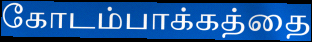
கோடம்பாக்கத்தை